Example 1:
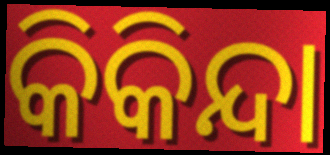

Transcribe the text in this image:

କିକିନ୍ଦା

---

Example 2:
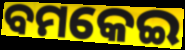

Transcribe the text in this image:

ବମକେଇ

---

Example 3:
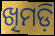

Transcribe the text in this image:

ଖିମଡ଼ି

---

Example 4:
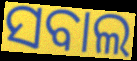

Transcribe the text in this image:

ସବାଲ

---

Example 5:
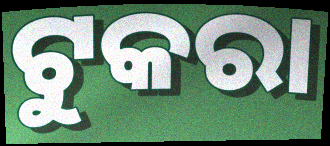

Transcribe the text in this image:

ଟୁକରା